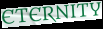
ETERNITY